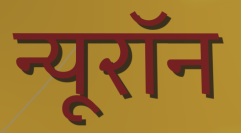
न्यूरॉन